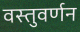
वस्तुवर्णन